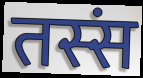
तस्सं